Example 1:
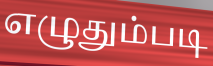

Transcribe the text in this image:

எழுதும்படி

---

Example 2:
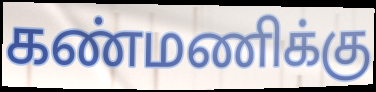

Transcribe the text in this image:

கண்மணிக்கு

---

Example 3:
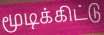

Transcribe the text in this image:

மூடிக்கிட்டு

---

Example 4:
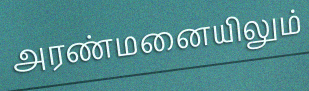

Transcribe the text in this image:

அரண்மனையிலும்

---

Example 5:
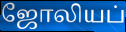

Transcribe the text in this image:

ஜோலியப்